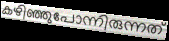
കഴിഞ്ഞുപോന്നിരുന്നത്